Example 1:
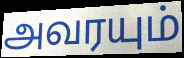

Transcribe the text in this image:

அவரயும்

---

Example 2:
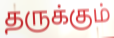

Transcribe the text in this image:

தருக்கும்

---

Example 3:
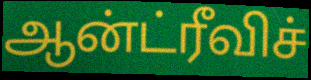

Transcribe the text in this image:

ஆன்ட்ரீவிச்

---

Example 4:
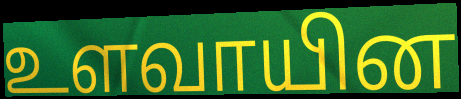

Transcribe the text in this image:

உளவாயின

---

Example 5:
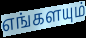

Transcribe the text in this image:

எங்களயும்